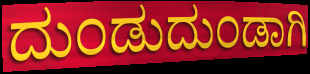
ದುಂಡುದುಂಡಾಗಿ